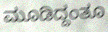
ಮೂಡಿದ್ದಂತೂ